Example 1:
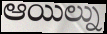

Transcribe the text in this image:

ఆయిల్ను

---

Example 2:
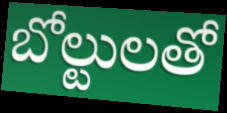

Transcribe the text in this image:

బోల్టులతో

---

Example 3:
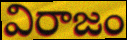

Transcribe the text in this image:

విరాజం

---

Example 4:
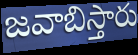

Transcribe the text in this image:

జవాబిస్తారు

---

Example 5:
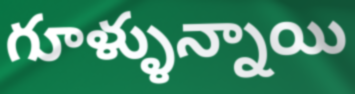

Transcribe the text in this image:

గూళ్ళున్నాయి